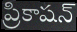
ప్రికాషన్